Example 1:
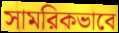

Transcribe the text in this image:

সামরিকভাবে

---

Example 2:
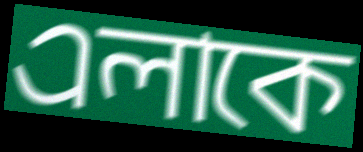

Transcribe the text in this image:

এলাকে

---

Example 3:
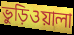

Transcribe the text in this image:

ভুড়িওয়ালা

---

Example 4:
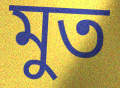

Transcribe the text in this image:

মুত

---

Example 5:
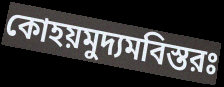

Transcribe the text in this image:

কোহয়মুদ্যমবিস্তরঃ